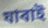
যাবাই